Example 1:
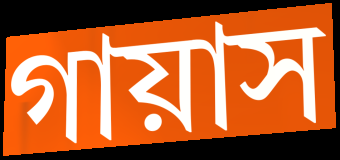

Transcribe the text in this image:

গায়াস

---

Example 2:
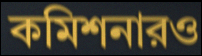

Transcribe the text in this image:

কমিশনারও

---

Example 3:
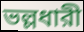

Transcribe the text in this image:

ভল্লধারী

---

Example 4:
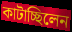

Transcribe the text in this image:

কাটাচ্ছিলেন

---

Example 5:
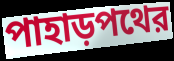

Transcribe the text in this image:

পাহাড়পথের